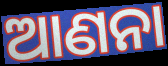
ଆଣନା